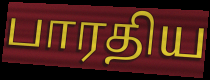
பாரதிய